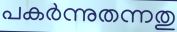
പകർന്നുതന്നതു